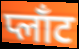
प्लाँट